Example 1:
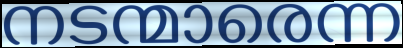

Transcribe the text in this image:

നടന്മാരെന്ന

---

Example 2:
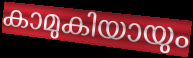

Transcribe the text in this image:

കാമുകിയായും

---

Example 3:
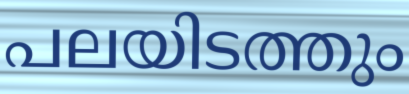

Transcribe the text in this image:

പലയിടത്തും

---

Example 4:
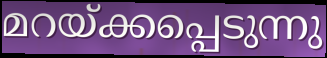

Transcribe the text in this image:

മറയ്ക്കപ്പെടുന്നു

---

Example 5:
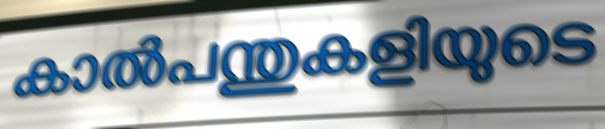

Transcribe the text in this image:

കാൽപന്തുകളിയുടെ